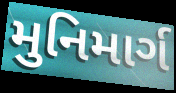
મુનિમાર્ગ